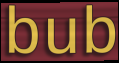
bub